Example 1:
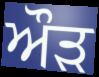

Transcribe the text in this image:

ਔਡ਼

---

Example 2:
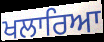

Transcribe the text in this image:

ਖਲਾਰਿਆ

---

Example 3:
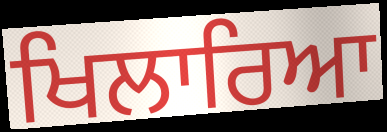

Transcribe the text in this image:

ਖਿਲਾਰਿਆ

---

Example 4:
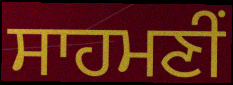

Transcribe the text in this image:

ਸਾਹਮਣੀਂ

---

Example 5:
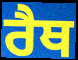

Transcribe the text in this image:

ਰੈਥ